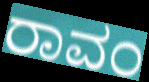
ರಾವಂ